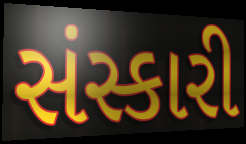
સંસ્કારી